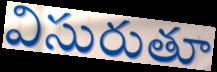
విసురుతూ